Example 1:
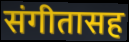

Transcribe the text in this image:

संगीतासह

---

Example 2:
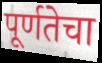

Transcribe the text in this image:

पूर्णतेचा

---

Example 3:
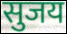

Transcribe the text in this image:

सुजय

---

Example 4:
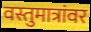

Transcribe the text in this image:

वस्तुमात्रांवर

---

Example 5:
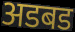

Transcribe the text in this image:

अडबड